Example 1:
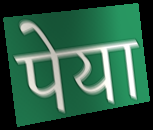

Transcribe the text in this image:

पेया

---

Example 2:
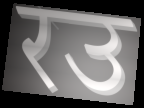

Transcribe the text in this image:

रउ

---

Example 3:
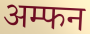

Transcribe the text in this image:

अम्फन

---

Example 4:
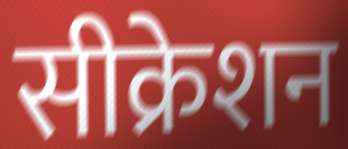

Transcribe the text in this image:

सीक्रेशन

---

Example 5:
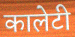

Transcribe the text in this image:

कालेटी